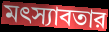
মৎস্যাবতার